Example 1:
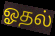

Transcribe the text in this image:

ஓதல்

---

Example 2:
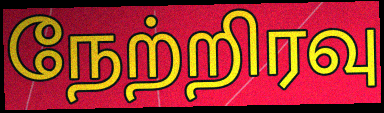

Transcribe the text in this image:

நேற்றிரவு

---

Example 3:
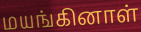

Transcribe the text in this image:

மயங்கினாள்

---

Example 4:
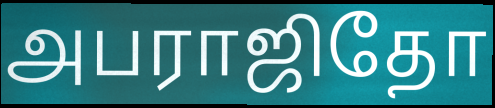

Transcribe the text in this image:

அபராஜிதோ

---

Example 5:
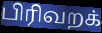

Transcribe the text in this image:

பிரிவறக்